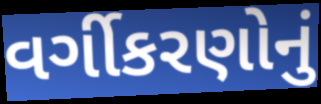
વર્ગીકરણોનું